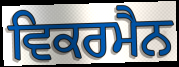
ਵਿਕਰਮੈਨ